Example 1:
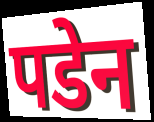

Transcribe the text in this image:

पडेन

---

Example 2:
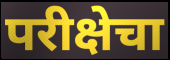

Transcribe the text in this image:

परीक्षेचा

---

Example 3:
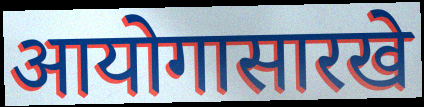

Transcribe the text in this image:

आयोगासारखे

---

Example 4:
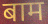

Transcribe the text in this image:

बाम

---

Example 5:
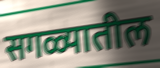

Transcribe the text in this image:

सगळ्यातील